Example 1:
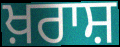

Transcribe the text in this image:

ਖ਼ਰਾਸ਼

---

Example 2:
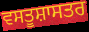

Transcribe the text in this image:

ਵਸਤੂਸ਼ਾਸਤਰ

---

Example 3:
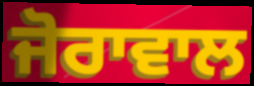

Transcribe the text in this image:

ਜੋਰਾਵਾਲ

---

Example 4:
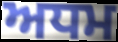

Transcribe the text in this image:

ਅਧਮ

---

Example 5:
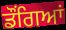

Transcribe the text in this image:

ਡੌਂਗਿਆਂ